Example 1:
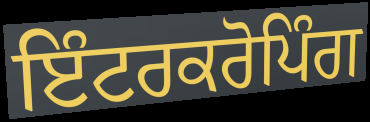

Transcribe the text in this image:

ਇੰਟਰਕਰੋਪਿੰਗ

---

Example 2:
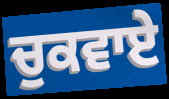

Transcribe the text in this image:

ਚੁਕਵਾਏ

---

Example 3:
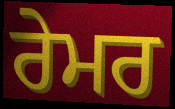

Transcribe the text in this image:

ਰੇਮਰ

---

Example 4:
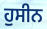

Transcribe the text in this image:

ਹੁਸੀਨ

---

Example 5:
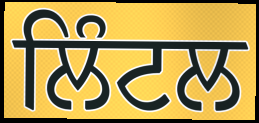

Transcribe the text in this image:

ਲਿੰਟਲ